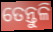
ତେନ୍ତୁଳି